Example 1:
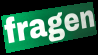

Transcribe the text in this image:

fragen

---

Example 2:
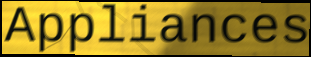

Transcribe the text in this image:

Appliances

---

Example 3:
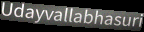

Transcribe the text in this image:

Udayvallabhasuri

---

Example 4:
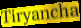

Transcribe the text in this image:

Tiryancha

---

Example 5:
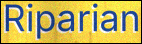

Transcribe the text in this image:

Riparian